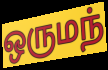
ஒருமந்